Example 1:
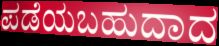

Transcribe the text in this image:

ಪಡೆಯಬಹುದಾದ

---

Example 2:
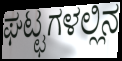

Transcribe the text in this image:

ಘಟ್ಟಗಳಲ್ಲಿನ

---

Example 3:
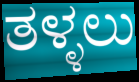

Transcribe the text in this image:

ತಳ್ಳಲು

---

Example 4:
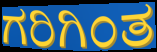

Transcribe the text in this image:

ಗರಿಗಿಂತ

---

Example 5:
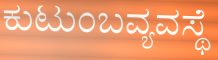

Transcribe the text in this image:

ಕುಟುಂಬವ್ಯವಸ್ಥೆ